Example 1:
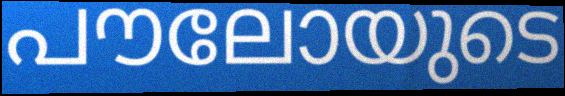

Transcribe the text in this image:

പൗലോയുടെ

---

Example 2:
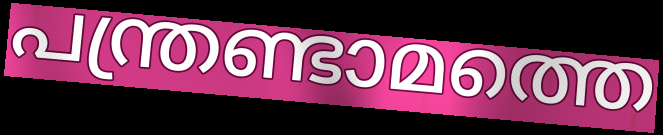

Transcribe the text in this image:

പന്ത്രണ്ടാമത്തെ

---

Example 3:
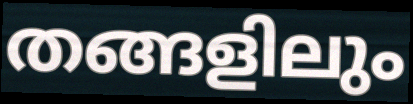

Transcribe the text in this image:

തങ്ങളിലും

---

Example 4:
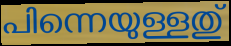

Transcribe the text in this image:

പിന്നെയുള്ളതു്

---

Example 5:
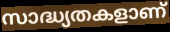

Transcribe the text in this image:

സാദ്ധ്യതകളാണ്